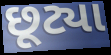
છૂટ્યા